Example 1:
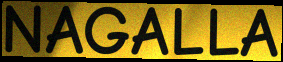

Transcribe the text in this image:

NAGALLA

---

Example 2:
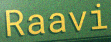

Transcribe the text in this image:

Raavi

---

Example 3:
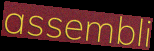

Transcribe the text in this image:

assembli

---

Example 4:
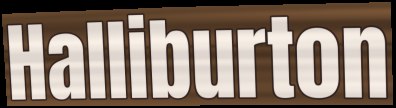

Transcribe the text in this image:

Halliburton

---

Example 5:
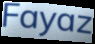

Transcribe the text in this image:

Fayaz